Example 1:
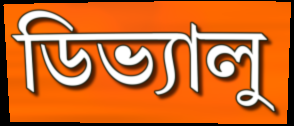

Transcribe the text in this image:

ডিভ্যালু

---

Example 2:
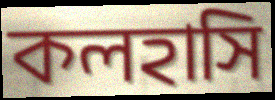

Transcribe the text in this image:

কলহাসি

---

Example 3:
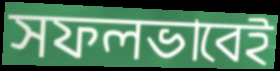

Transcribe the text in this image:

সফলভাবেই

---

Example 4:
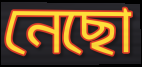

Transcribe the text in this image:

নেছো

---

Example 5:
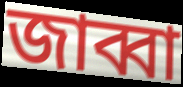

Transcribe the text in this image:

জাব্বা